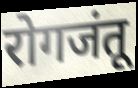
रोगजंतू